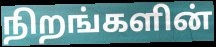
நிறங்களின்